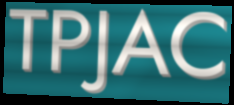
TPJAC